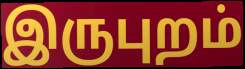
இருபுறம்